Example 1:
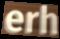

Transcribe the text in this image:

erh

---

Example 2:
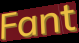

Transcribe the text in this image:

Fant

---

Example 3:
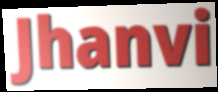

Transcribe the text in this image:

Jhanvi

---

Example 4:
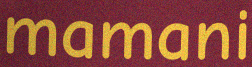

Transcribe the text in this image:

mamani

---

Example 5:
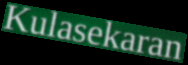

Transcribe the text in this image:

Kulasekaran